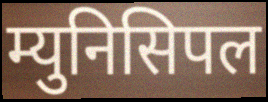
म्युनिसिपल